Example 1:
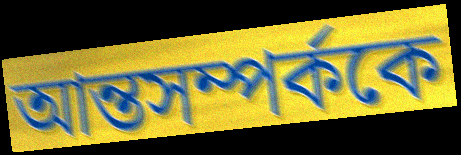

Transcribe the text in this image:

আন্তসম্পর্ককে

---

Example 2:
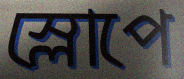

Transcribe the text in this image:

স্লোপে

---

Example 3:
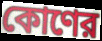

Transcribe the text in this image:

কোণের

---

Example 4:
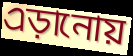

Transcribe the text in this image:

এড়ানোয়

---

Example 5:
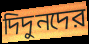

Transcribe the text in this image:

দিদুনদের